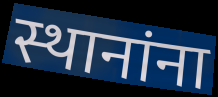
स्थानांना